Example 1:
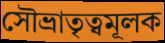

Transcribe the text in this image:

সৌভ্রাতৃত্বমূলক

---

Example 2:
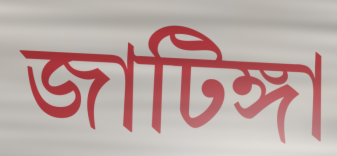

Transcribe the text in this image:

জাটিঙ্গা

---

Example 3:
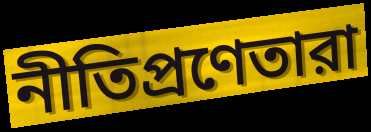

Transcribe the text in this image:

নীতিপ্রণেতারা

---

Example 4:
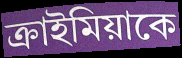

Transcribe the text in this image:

ক্রাইমিয়াকে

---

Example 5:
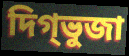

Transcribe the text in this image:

দিগ্ভুজা